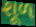
શૂળ